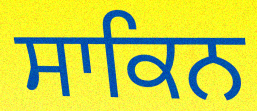
ਸਾਕਿਨ